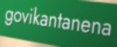
govikantanena